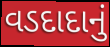
વડદાદાનું